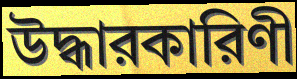
উদ্ধারকারিণী